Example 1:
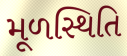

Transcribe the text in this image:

મૂળસ્થિતિ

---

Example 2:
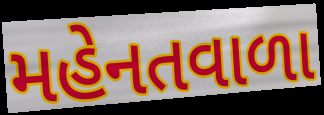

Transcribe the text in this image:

મહેનતવાળા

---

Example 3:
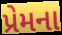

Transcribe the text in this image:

પ્રેમના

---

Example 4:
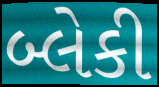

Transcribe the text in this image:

બ્લેકી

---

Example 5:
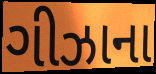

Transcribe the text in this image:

ગીઝાના